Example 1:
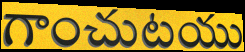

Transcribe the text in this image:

గాంచుటయు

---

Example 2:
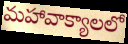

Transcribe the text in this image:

మహావాక్యాలలో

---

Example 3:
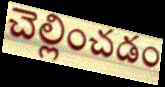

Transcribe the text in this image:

చెల్లించడం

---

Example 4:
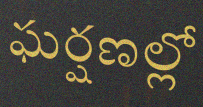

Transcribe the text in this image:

ఘర్షణల్లో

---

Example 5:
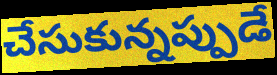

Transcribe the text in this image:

చేసుకున్నప్పుడే